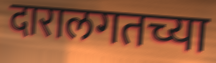
दारालगतच्या